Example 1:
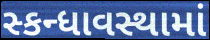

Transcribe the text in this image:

સ્કન્ધાવસ્થામાં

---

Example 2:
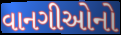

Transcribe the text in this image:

વાનગીઓનો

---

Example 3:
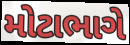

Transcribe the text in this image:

મોટાભાગે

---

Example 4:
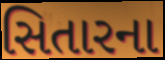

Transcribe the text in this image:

સિતારના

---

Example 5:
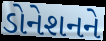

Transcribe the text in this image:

ડોનેશનને